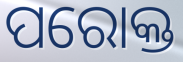
ପରୋକ୍ତ